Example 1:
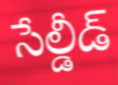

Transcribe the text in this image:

సేల్డీడ్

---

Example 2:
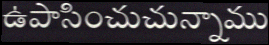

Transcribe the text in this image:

ఉపాసించుచున్నాము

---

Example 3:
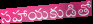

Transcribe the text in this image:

సహాయకుడితో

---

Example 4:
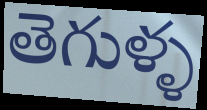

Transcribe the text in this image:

తెగుళ్ళ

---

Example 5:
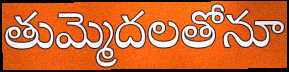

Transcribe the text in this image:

తుమ్మెదలతోనూ